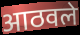
आठवले